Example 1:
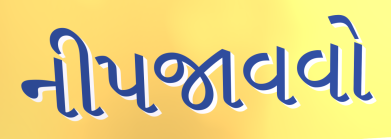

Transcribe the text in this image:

નીપજાવવો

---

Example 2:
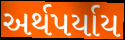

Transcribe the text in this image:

અર્થપર્યાય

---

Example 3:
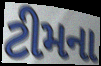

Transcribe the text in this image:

ટીમના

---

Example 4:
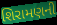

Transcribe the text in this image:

શિરામણની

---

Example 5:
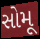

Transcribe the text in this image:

સોમૂ